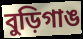
বুড়িগাঙ